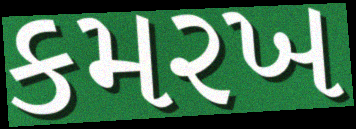
કમરખ